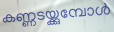
കണ്ണടയ്ക്കുമ്പോൾ